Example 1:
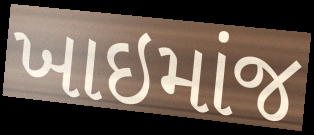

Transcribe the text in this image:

ખાઇમાંજ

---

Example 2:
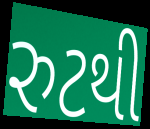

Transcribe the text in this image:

રુટથી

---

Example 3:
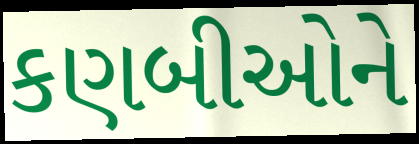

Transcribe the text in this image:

કણબીઓને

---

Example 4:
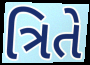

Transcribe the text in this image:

ત્રિતે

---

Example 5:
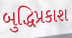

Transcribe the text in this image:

બુદ્ધિપ્રકાશ